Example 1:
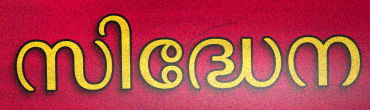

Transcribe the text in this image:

സിദ്ധേന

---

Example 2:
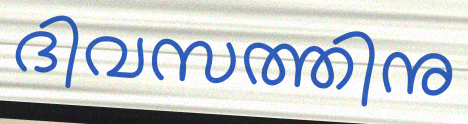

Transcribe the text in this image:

ദിവസത്തിനു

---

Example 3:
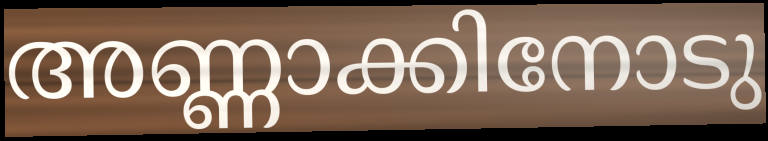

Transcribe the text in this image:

അണ്ണാക്കിനോടു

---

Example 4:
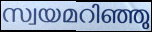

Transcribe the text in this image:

സ്വയമറിഞ്ഞു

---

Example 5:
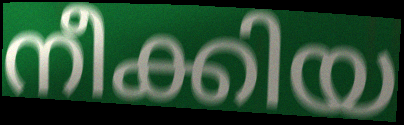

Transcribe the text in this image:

നീക്കിയ